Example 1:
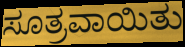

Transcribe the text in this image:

ಸೂತ್ರವಾಯಿತು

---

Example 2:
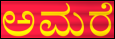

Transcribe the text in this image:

ಅಮರೆ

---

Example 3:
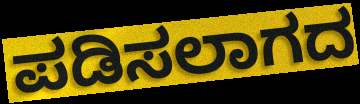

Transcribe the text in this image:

ಪಡಿಸಲಾಗದ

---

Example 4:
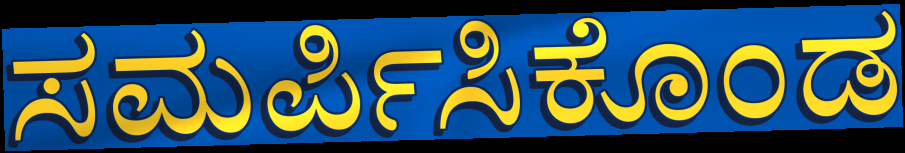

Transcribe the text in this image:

ಸಮರ್ಪಿಸಿಕೊಂಡ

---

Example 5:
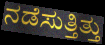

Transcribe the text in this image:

ನಡೆಸುತ್ತಿತ್ತು